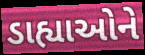
ડાહ્યાઓને